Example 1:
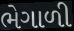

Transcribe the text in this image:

ભેગાળી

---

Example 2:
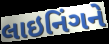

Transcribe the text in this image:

લાઇનિંગને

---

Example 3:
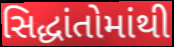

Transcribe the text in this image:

સિદ્ધાંતોમાંથી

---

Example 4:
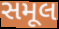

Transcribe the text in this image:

સમૂલ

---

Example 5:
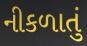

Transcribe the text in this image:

નીકળાતું